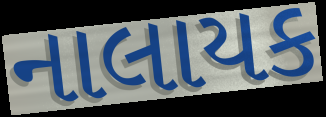
નાલાયક